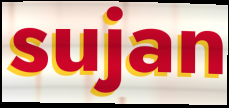
sujan